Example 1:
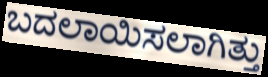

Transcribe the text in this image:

ಬದಲಾಯಿಸಲಾಗಿತ್ತು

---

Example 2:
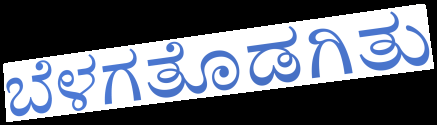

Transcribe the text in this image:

ಬೆಳಗತೊಡಗಿತು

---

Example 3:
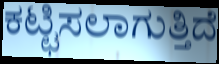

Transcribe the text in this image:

ಕಟ್ಟಿಸಲಾಗುತ್ತಿದೆ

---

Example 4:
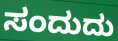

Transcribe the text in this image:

ಸಂದುದು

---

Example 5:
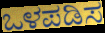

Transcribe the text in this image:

ಒಳಪಡಿಸ